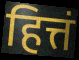
हित्तं